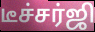
டீச்சர்ஜி